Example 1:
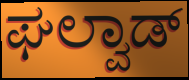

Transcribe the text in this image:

ಘಲ್ವಾಡ್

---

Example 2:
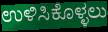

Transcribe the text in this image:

ಉಳಿಸಿಕೊಳ್ಳಲು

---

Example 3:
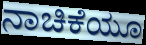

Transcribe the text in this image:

ನಾಚಿಕೆಯೂ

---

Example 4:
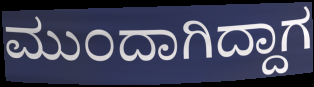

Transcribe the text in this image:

ಮುಂದಾಗಿದ್ದಾಗ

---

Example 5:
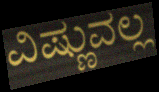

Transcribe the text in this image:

ವಿಷ್ಣುವಲ್ಲ